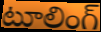
టూలింగ్